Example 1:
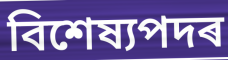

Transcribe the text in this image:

বিশেষ্যপদৰ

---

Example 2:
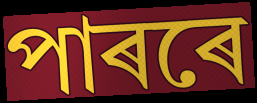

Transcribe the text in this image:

পাৰৰে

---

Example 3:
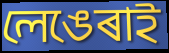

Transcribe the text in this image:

লেঙেৰাই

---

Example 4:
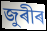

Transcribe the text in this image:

জুৰীৰ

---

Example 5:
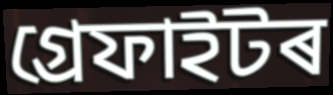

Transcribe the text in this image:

গ্ৰেফাইটৰ